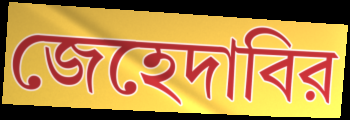
জেহেদাবির